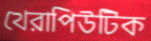
থেরাপিউটিক